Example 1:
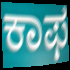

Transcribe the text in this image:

ಕಾಫ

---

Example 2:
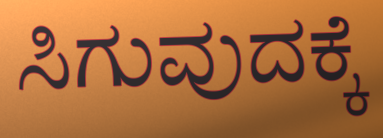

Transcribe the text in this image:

ಸಿಗುವುದಕ್ಕೆ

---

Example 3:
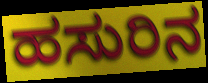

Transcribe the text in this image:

ಹಸುರಿನ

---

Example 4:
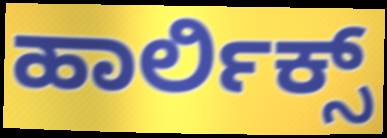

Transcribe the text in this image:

ಹಾರ್ಲಿಕ್ಸ್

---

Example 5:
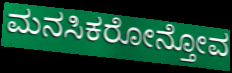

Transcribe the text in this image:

ಮನಸಿಕರೋನ್ತೋವ